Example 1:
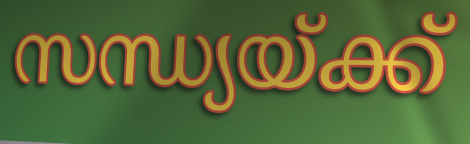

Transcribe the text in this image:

സന്ധ്യയ്ക്ക്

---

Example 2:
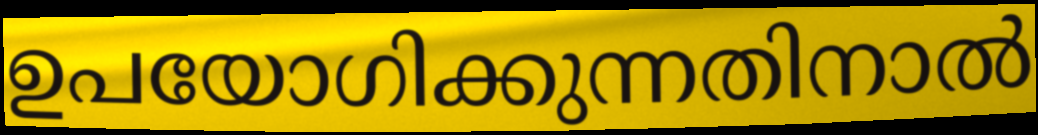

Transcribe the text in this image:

ഉപയോഗിക്കുന്നതിനാൽ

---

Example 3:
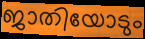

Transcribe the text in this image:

ജാതിയോടും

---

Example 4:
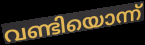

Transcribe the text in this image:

വണ്ടിയൊന്ന്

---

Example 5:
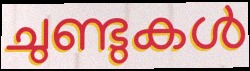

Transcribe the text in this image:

ചുണ്ടുകൾ